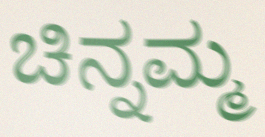
ಚಿನ್ನಮ್ಮ